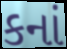
કનાં